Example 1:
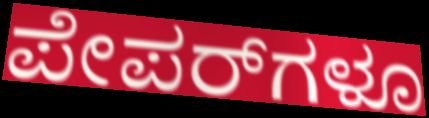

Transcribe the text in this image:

ಪೇಪರ್‌ಗಳೂ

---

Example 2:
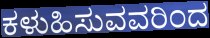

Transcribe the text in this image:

ಕಳುಹಿಸುವವರಿಂದ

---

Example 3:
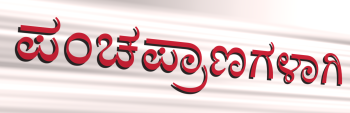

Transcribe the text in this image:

ಪಂಚಪ್ರಾಣಗಳಾಗಿ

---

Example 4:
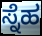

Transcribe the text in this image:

ಸ್ನೆಹ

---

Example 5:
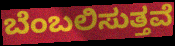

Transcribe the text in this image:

ಬೆಂಬಲಿಸುತ್ತವೆ